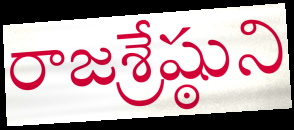
రాజశ్రేష్ఠుని